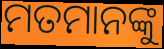
ମତମାନଙ୍କୁ